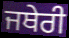
ਜਥੇਰੀ